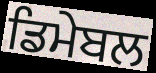
ਡਿਮੇਬਲ